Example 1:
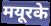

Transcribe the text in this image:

मयूरके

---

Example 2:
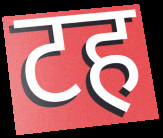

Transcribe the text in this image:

टह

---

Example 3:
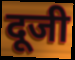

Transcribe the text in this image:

दूजी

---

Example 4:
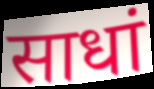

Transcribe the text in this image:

साधां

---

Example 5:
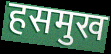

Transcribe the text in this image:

हसमुख